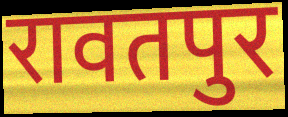
रावतपुर